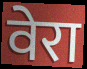
वेरा